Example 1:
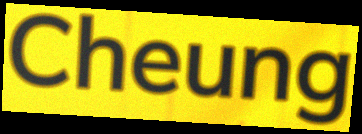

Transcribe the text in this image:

Cheung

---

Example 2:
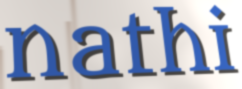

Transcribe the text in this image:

nathi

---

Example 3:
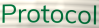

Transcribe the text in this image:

Protocol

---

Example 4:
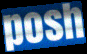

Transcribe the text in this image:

posh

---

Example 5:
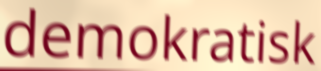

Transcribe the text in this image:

demokratisk